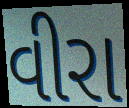
વીરા